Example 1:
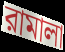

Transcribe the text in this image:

রামালা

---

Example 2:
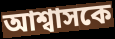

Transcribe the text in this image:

আশ্বাসকে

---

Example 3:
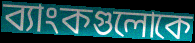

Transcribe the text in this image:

ব্যাংকগুলোকে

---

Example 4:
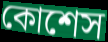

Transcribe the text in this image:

কোশেস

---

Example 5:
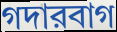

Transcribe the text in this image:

গদারবাগ